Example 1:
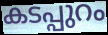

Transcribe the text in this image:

കടപ്പുറം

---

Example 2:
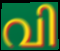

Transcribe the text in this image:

വി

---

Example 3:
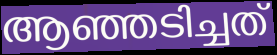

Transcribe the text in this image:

ആഞ്ഞടിച്ചത്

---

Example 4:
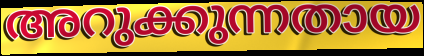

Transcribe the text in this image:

അറുക്കുന്നതായ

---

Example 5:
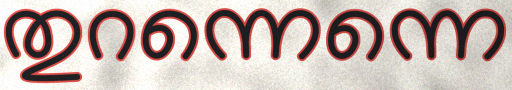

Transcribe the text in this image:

തുറന്നെന്നെ